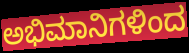
ಅಭಿಮಾನಿಗಳಿಂದ